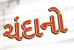
ચંદાનો